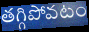
తగ్గిపోవటం